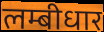
लम्बीधार